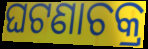
ଘଟଣାଚକ୍ର